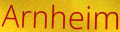
Arnheim